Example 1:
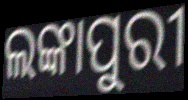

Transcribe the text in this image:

ଲଙ୍କାପୁରୀ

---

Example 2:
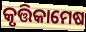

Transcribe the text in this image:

କୃତ୍ତିକାମେଷ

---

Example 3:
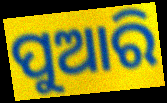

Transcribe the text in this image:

ପୁଆରି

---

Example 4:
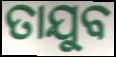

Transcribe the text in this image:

ତାଯୁବ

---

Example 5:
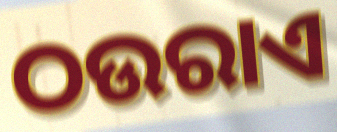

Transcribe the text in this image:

ଠଉରାଏ